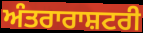
ਅੰਤਰਾਰਾਸ਼ਟਰੀ